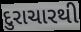
દુરાચારથી